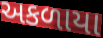
અકળાયા